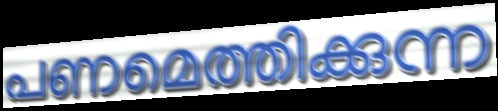
പണമെത്തിക്കുന്ന